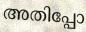
അതിപ്പോ